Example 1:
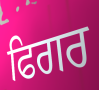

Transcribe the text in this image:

ਫਿਗਰ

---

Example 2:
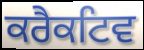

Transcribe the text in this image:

ਕਰੈਕਟਿਵ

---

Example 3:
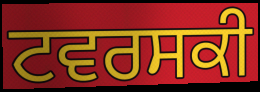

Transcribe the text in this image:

ਟਵਰਸਕੀ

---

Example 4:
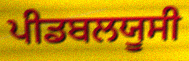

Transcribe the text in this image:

ਪੀਡਬਲਯੂਸੀ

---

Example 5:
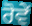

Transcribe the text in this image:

ਰੋਵੇਂ